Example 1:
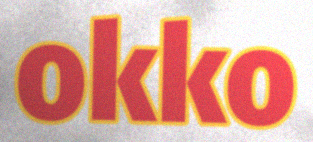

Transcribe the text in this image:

okko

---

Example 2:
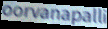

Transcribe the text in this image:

oorvanapalli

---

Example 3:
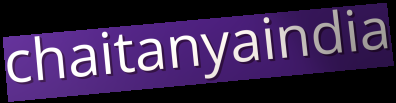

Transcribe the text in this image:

chaitanyaindia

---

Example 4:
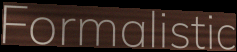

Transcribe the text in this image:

Formalistic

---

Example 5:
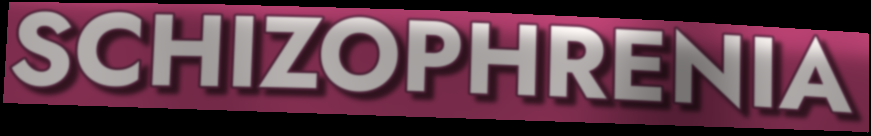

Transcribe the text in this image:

SCHIZOPHRENIA